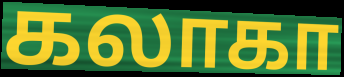
கலாகா